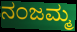
ನಂಜಮ್ಮ